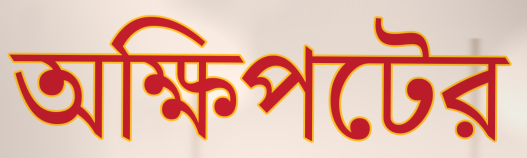
অক্ষিপটের